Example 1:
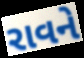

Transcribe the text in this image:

રાવને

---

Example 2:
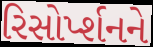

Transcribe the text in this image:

રિસોર્પ્શનને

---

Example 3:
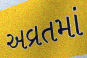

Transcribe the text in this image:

અવ્રતમાં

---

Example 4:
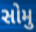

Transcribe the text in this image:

સોમુ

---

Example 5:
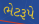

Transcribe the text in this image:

ભેટરૂપે